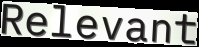
Relevant